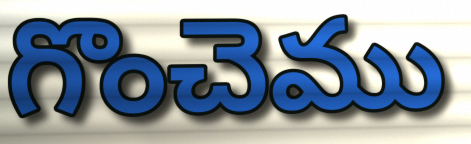
గొంచెము